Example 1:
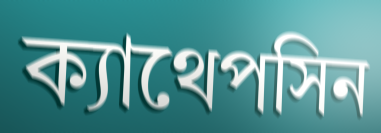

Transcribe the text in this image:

ক্যাথেপসিন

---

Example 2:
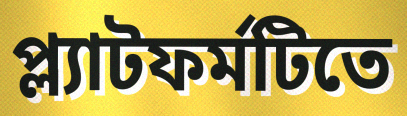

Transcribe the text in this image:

প্ল্যাটফর্মটিতে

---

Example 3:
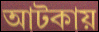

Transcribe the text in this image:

আটকায়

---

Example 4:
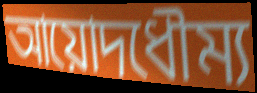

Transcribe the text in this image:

আয়োদধৌম্য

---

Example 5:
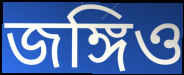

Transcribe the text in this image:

জঙ্গিও